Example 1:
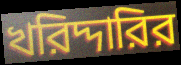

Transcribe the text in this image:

খরিদ্দারির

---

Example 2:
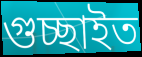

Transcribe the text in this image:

গুচ্ছাইত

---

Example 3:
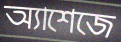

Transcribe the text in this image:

অ্যাশেজে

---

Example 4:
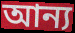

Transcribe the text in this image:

আন্য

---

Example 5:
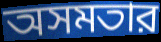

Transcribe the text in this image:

অসমতার